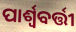
ପାର୍ଶ୍ୱବର୍ତ୍ତୀ